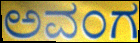
ಅವಂಗ